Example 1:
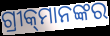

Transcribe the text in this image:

ଗ୍ରୀକ୍‌ମାନଙ୍କର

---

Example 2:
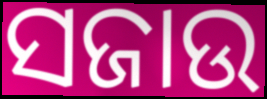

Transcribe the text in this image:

ସଜାଉ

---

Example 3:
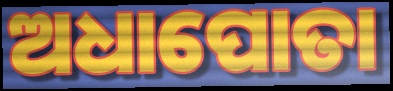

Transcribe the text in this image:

ଅଧାପୋତା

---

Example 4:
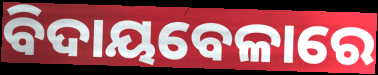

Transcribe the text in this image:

ବିଦାୟବେଳାରେ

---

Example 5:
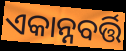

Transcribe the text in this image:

ଏକାନ୍ନବର୍ତ୍ତି